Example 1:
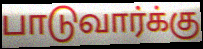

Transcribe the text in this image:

பாடுவார்க்கு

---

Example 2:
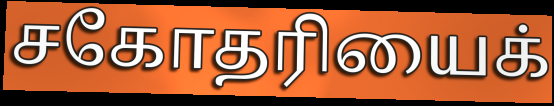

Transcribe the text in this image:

சகோதரியைக்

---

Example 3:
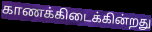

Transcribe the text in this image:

காணக்கிடைக்கின்றது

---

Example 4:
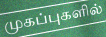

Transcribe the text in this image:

முகப்புகளில்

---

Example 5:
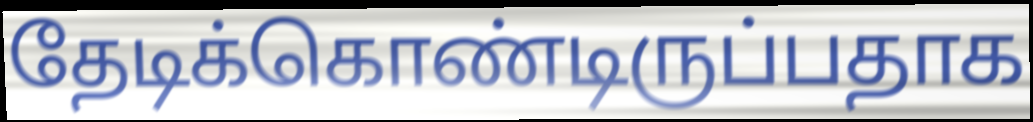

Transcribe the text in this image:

தேடிக்கொண்டிருப்பதாக